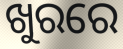
ଖୁରରେ